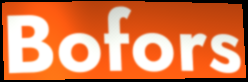
Bofors